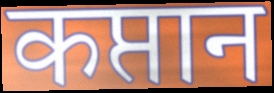
कप्तान